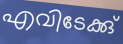
എവിടേക്കു്